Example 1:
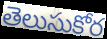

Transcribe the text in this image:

తెలుసుకోర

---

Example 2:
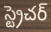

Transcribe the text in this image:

స్ట్రెచర్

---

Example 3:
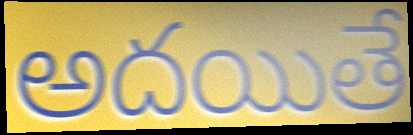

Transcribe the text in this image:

అదయితే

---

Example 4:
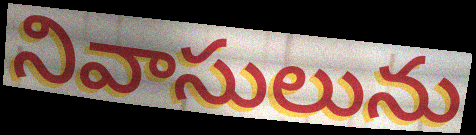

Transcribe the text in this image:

నివాసులును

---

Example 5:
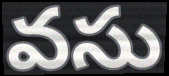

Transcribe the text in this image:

వసు